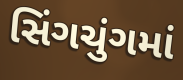
સિંગચુંગમાં